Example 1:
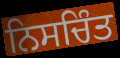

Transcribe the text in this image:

ਨਿਸਚਿੰਤ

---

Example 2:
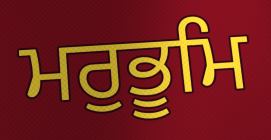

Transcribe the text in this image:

ਮਰੁਭੂਮਿ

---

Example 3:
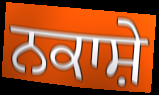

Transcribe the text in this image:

ਨਕਾਸ਼ੇ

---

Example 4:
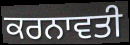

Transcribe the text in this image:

ਕਰਨਾਵਤੀ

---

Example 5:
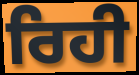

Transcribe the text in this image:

ਰਿਹੀ